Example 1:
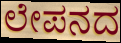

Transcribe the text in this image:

ಲೇಪನದ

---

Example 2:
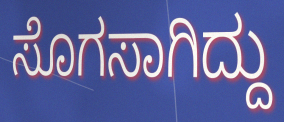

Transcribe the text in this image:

ಸೊಗಸಾಗಿದ್ದು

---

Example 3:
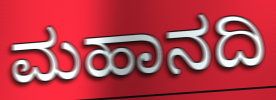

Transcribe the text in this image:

ಮಹಾನದಿ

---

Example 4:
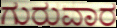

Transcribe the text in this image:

ಗುರುವಾರ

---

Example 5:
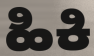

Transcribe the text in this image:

ಹಿಕಿ